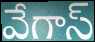
వేగాస్